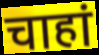
चाहां